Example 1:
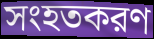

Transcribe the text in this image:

সংহতকরণ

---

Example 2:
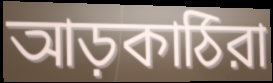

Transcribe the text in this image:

আড়কাঠিরা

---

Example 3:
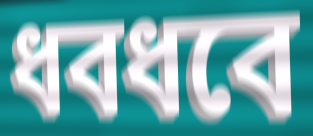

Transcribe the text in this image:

ধবধবে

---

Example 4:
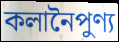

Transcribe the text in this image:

কলানৈপুণ্য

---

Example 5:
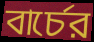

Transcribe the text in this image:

বার্চের